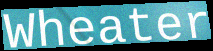
Wheater